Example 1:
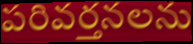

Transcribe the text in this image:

పరివర్తనలను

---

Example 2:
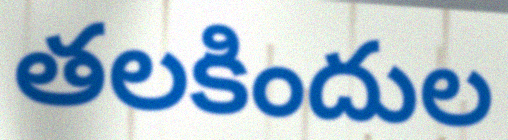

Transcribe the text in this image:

తలకిందుల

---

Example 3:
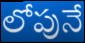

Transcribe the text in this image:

లోపునే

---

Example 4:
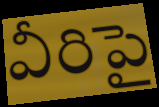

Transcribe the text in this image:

వీరిపై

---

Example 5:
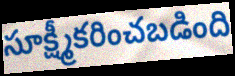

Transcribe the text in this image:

సూక్ష్మీకరించబడింది